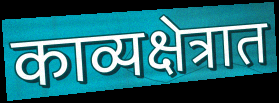
काव्यक्षेत्रात